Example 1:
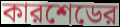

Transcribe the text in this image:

কারশেডের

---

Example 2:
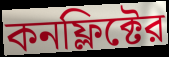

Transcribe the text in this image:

কনফ্লিক্টের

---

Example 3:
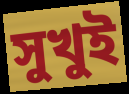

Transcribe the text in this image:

সুখুই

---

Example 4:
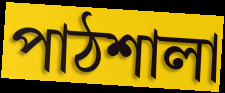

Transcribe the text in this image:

পাঠশালা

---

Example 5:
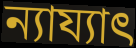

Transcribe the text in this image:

ন্যায্যাৎ